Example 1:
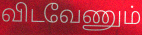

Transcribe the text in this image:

விடவேணும்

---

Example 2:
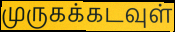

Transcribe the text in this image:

முருகக்கடவுள்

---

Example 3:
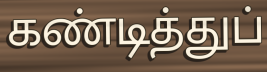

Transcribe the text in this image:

கண்டித்துப்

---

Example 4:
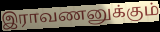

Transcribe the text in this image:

இராவணனுக்கும்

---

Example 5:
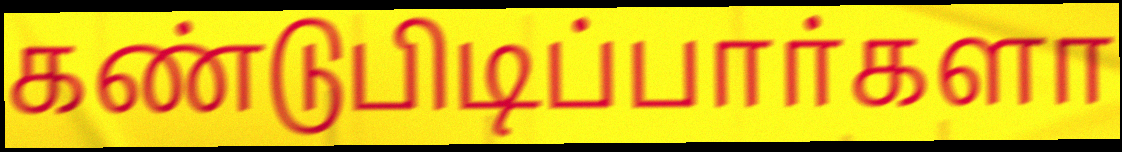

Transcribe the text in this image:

கண்டுபிடிப்பார்களா